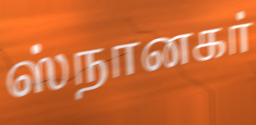
ஸ்நானகர்